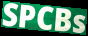
SPCBs